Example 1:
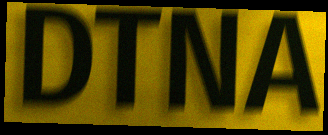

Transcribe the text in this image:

DTNA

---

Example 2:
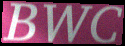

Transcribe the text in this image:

BWC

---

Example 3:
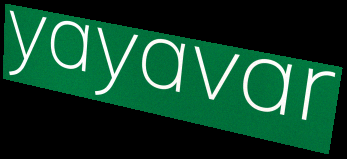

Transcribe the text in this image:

yayavar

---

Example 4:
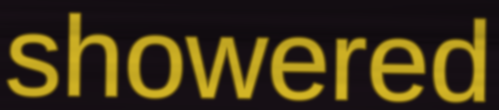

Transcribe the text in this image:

showered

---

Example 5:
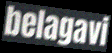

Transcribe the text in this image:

belagavi